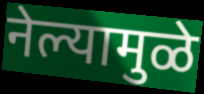
नेल्यामुळे